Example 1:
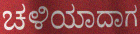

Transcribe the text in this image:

ಚಳಿಯಾದಾಗ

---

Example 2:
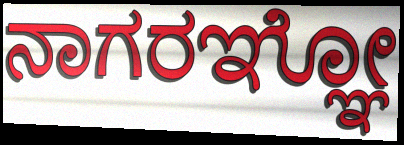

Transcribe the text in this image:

ನಾಗರಞ್ಞೋ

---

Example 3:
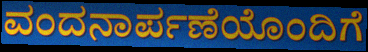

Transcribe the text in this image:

ವಂದನಾರ್ಪಣೆಯೊಂದಿಗೆ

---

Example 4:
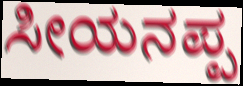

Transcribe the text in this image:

ಸೀಯನಪ್ಪ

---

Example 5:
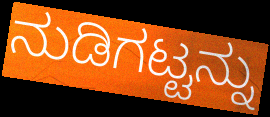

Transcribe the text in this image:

ನುಡಿಗಟ್ಟನ್ನು